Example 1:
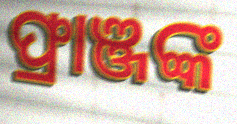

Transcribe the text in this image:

ଫ୍ରାଞ୍ଜଙ୍କ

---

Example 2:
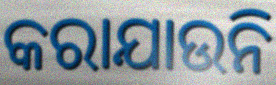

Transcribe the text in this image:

କରାଯାଉନି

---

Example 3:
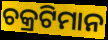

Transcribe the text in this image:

ଚକ୍ରଟିମାନ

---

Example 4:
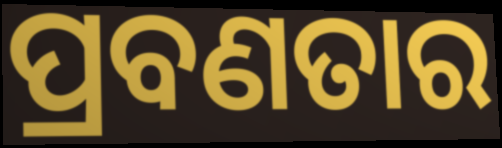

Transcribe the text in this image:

ପ୍ରବଣତାର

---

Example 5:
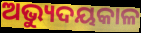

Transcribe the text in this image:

ଅଭ୍ୟୁଦୟକାଳ